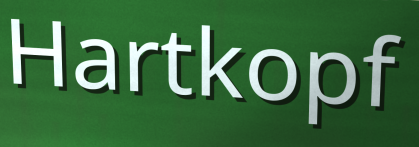
Hartkopf